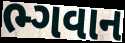
ભ્ગવાન